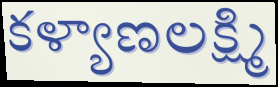
కళ్యాణలక్ష్మి